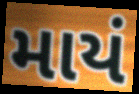
માયં